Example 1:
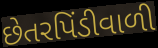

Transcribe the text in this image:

છેતરપિંડીવાળી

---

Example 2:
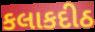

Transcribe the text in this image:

કલાકદીઠ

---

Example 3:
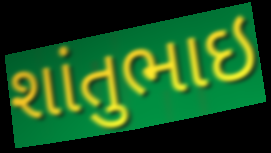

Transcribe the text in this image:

શાંતુભાઇ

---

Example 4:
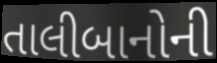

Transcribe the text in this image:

તાલીબાનોની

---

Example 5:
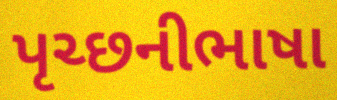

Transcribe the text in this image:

પૃચ્છનીભાષા